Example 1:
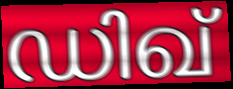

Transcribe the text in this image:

ഡിഖ്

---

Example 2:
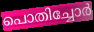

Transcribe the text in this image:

പൊതിച്ചോർ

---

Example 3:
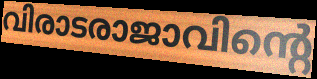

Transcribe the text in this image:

വിരാടരാജാവിന്റെ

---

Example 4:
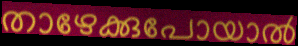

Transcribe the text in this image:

താഴേക്കുപോയാൽ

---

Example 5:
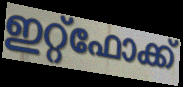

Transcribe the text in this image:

ഇറ്റ്ഫോക്ക്